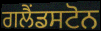
ਗਲੈਂਡਸਟੋਨ